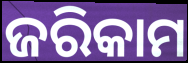
ଜରିକାମ